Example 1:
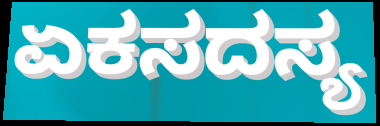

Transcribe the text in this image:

ಏಕಸದಸ್ಯ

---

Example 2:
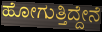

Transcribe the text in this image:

ಹೋಗುತ್ತಿದ್ದೇನೆ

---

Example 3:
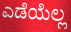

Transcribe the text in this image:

ಎಡೆಯೆಲ್ಲ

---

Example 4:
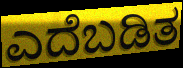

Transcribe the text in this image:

ಎದೆಬಡಿತ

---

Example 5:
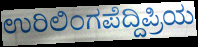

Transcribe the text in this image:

ಉರಿಲಿಂಗಪೆದ್ದಿಪ್ರಿಯ